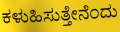
ಕಳುಹಿಸುತ್ತೇನೆಂದು